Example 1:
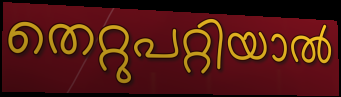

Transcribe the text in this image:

തെറ്റുപറ്റിയാൽ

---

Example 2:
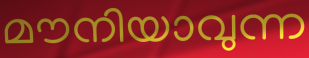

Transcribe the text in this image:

മൗനിയാവുന്ന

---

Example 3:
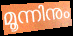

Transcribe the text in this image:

മൂന്നിനും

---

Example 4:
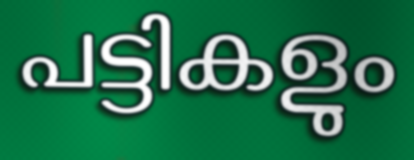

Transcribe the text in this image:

പട്ടികളും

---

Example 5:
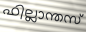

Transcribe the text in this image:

ഫില്ലാന്തസ്